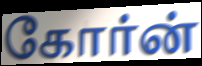
கோர்ன்